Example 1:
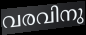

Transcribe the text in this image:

വരവിനു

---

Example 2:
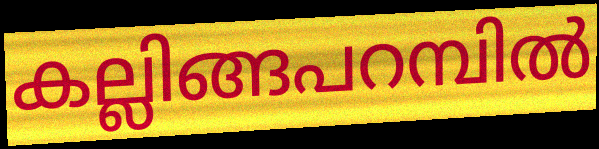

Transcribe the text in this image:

കല്ലിങ്ങപറമ്പിൽ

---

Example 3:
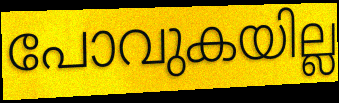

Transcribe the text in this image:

പോവുകയില്ല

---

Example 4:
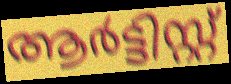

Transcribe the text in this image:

ആർട്ടിസ്റ്റ്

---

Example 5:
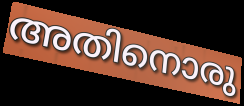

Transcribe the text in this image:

അതിനൊരു